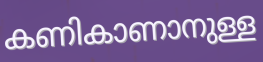
കണികാണാനുള്ള